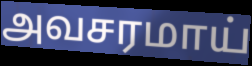
அவசரமாய்